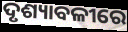
ଦୃଶ୍ୟାବଳୀରେ